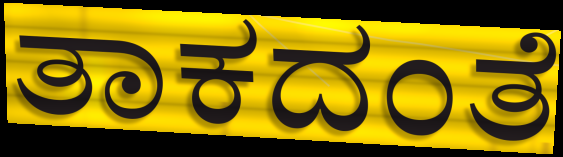
ತಾಕದಂತೆ